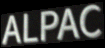
ALPAC